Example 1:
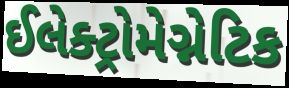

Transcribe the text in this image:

ઈલેક્ટ્રોમેગ્નેટિક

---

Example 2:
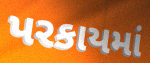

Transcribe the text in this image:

પરકાયમાં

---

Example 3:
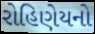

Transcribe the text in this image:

રોહિણેયનો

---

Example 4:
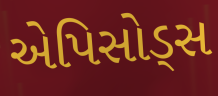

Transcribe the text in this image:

એપિસોડ્સ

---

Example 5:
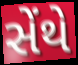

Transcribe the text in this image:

સેંથે